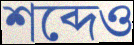
শব্দেও